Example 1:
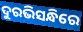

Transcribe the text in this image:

ଦୁରଭିସନ୍ଧିରେ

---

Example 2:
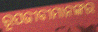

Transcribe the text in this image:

ରୂପଜୀବୀମାନଙ୍କର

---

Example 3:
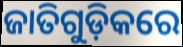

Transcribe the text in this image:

ଜାତିଗୁଡ଼ିକରେ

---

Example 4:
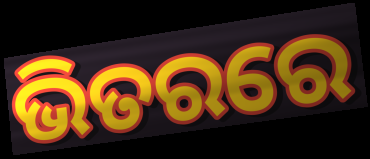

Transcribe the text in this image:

ଭିତରରେ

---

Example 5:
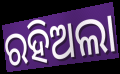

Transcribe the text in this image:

ରହିଅଲା